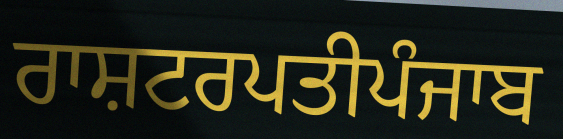
ਰਾਸ਼ਟਰਪਤੀਪੰਜਾਬ